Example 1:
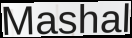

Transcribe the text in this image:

Mashal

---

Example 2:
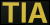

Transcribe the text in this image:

TIA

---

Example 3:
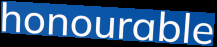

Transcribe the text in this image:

honourable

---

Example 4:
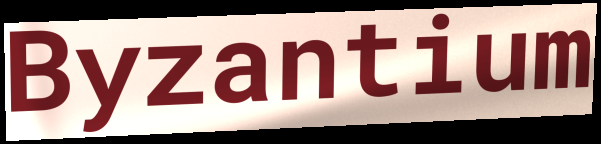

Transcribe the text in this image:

Byzantium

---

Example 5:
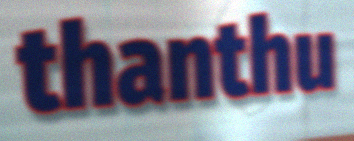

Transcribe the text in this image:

thanthu